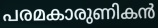
പരമകാരുണികൻ